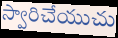
స్వారిచేయుచు